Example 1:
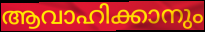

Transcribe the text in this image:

ആവാഹിക്കാനും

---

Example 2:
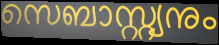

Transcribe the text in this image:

സെബാസ്റ്റ്യനും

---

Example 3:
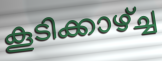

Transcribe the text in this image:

കൂടിക്കാഴ്ച്ച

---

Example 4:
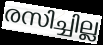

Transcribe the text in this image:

രസിച്ചില്ല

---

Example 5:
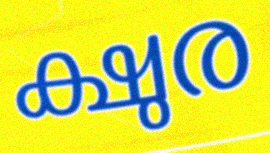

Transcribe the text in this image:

ക്ഷുര